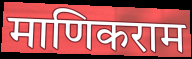
माणिकराम